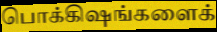
பொக்கிஷங்களைக்